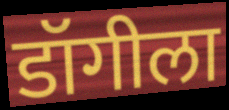
डॉगीला